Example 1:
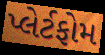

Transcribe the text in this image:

પ્લેર્ટફોમ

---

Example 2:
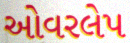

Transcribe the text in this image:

ઓવરલેપ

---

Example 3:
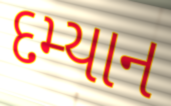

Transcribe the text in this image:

દમ્યાન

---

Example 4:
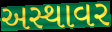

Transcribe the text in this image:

અસ્થાવર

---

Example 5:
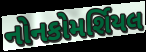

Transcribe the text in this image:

નોનકોમર્શિયલ